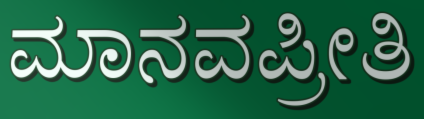
ಮಾನವಪ್ರೀತಿ